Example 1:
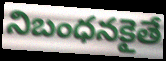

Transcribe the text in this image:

నిబంధనకైతే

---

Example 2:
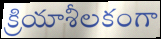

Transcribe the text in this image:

క్రియాశీలకంగా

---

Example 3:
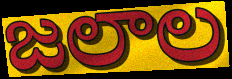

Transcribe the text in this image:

జలాల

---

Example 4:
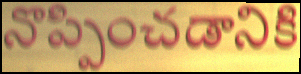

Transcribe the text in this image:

నొప్పించడానికి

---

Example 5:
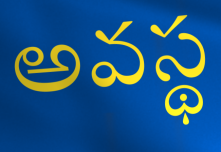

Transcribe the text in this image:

అవస్థ